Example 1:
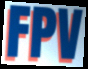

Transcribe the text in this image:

FPV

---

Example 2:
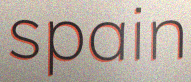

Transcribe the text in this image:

spain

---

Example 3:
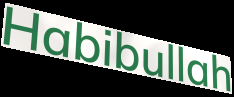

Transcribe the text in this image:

Habibullah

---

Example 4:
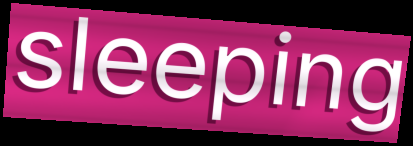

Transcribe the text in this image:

sleeping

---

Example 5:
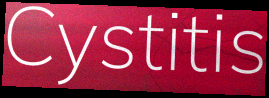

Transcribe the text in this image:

Cystitis